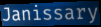
Janissary